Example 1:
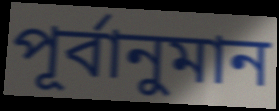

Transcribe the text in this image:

পূৰ্বানুমান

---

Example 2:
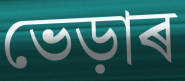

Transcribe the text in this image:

ভেড়াৰ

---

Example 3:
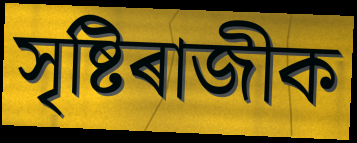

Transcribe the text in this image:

সৃষ্টিৰাজীক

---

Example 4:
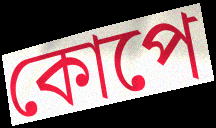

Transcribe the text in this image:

কোপে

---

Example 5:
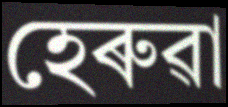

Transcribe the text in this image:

হেৰুৱা